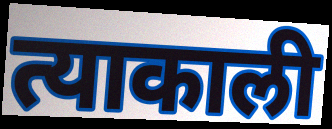
त्याकाली